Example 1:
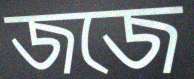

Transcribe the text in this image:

জজে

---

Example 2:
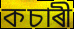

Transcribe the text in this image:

কচাৰী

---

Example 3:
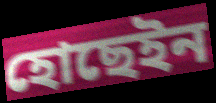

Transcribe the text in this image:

হোছেইন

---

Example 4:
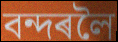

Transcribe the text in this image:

বন্দৰলৈ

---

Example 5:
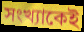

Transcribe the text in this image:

সংখ্যাকেই